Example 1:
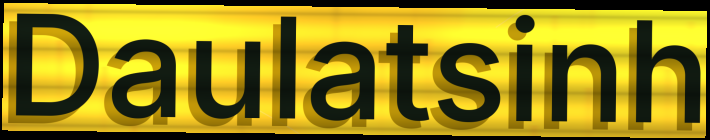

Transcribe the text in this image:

Daulatsinh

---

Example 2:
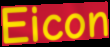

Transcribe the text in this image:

Eicon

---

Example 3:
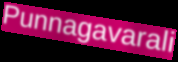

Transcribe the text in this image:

Punnagavarali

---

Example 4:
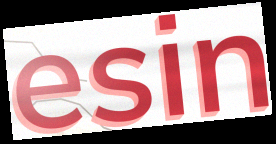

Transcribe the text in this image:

esin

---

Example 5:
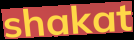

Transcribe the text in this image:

shakat